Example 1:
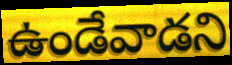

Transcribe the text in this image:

ఉండేవాడని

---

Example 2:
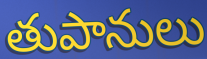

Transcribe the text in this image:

తుపానులు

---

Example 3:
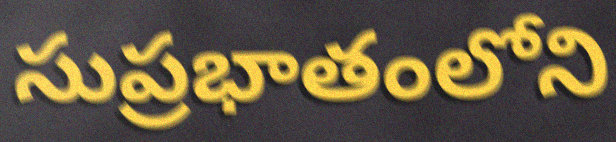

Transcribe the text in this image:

సుప్రభాతంలోని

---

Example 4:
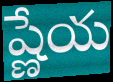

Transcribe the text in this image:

ష్ణేయ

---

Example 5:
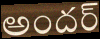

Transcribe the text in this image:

అందర్